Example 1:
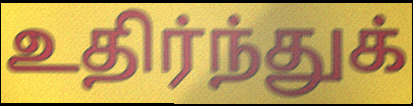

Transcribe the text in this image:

உதிர்ந்துக்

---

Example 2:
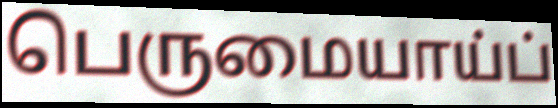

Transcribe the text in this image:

பெருமையாய்ப்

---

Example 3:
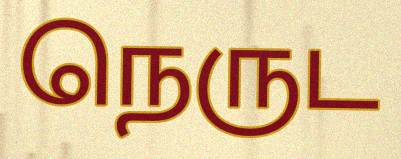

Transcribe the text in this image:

நெருட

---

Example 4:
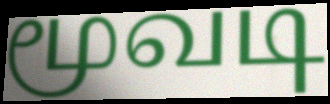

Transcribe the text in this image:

மூவடி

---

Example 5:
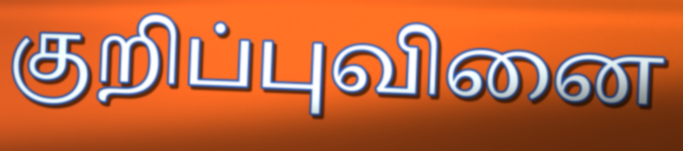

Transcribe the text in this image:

குறிப்புவினை